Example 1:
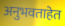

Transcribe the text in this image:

अनुभवताहेत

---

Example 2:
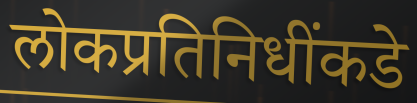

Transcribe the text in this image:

लोकप्रतिनिधींकडे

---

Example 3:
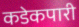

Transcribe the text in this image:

कडेकपारी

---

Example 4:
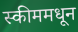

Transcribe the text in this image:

स्कीममधून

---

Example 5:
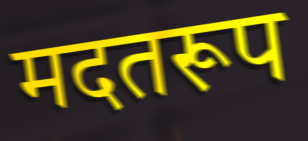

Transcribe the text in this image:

मदतरूप